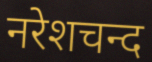
नरेशचन्द